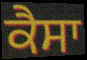
ਕੈਸਾ